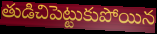
తుడిచిపెట్టుకుపోయిన